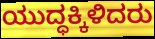
ಯುದ್ಧಕ್ಕಿಳಿದರು